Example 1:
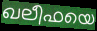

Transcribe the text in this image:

ഖലീഫയെ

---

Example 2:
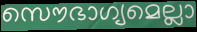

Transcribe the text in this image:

സൌഭാഗ്യമെല്ലാ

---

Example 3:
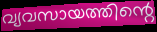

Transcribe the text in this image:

വ്യവസായത്തിന്റെ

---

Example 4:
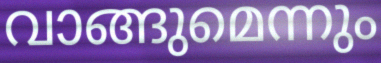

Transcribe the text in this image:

വാങ്ങുമെന്നും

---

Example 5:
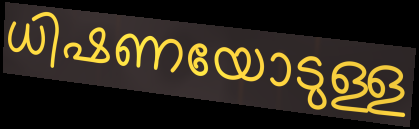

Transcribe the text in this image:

ധിഷണയോടുള്ള